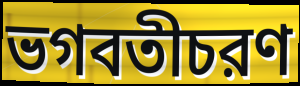
ভগবতীচরণ